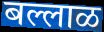
बल्लाळ